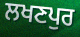
ਲਖਣਪੁਰ